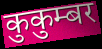
कुकुम्बर